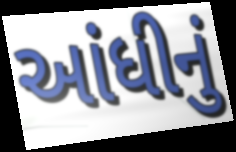
આંધીનું